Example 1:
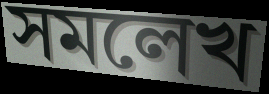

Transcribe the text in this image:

সমলেখ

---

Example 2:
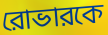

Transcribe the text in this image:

রোভারকে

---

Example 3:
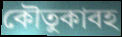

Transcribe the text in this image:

কৌতুকাবহ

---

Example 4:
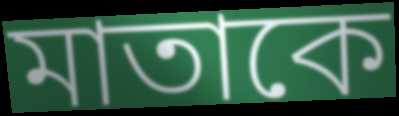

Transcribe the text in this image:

মাতাকে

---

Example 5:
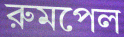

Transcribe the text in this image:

রুমপেল